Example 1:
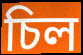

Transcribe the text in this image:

চিল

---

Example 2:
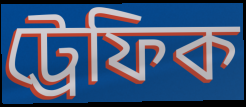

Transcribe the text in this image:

ট্ৰেফিক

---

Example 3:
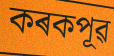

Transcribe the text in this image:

কৰকপূৱ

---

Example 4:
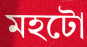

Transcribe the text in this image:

মহটো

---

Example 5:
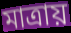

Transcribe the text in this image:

মাত্ৰায়